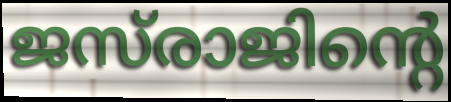
ജസ്‌രാജിന്റെ